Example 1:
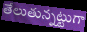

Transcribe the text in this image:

తేలుతున్నట్టుగా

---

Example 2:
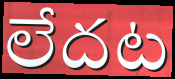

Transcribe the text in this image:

లేదట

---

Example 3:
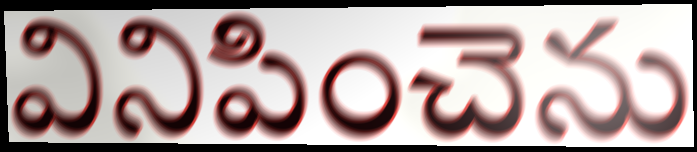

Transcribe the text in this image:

వినిపించెను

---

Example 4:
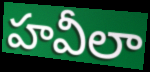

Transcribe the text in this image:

హవీలా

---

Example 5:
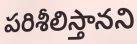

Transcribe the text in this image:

పరిశీలిస్తానని